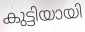
കുട്ടിയായി